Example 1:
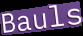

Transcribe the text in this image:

Bauls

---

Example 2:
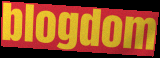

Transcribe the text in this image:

blogdom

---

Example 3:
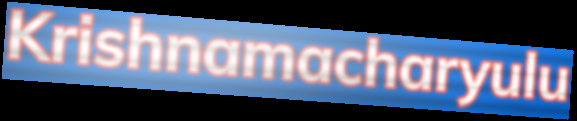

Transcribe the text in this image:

Krishnamacharyulu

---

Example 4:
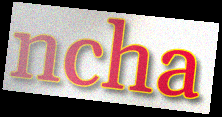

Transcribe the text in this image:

ncha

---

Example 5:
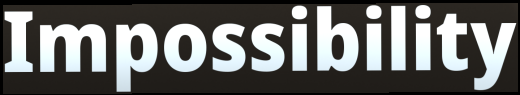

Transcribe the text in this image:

Impossibility